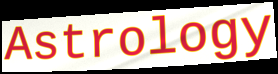
Astrology